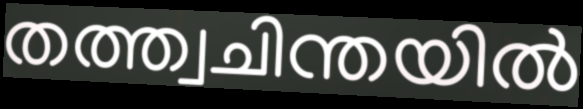
തത്ത്വചിന്തയിൽ